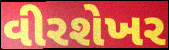
વીરશેખર